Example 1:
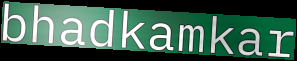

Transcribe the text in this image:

bhadkamkar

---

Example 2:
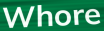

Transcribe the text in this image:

Whore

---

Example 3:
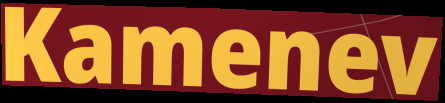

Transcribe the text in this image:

Kamenev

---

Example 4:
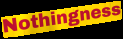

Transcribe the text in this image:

Nothingness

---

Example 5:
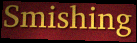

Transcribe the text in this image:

Smishing